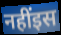
नहींइस